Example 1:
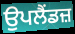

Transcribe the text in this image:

ਉਪਲੈਂਡਜ਼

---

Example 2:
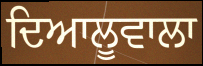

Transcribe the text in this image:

ਦਿਆਲੂਵਾਲਾ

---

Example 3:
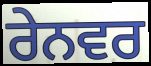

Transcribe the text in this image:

ਰੇਨਵਰ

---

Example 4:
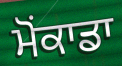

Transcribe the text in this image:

ਮੋਂਕਾਡਾ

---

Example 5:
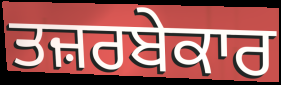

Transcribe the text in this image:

ਤਜ਼ਰਬੇਕਾਰ